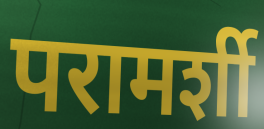
परामर्शी